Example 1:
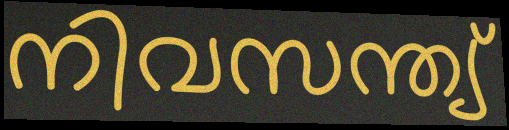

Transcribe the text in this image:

നിവസന്ത്യ്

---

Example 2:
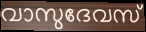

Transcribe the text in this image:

വാസുദേവസ്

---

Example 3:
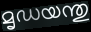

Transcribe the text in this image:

മൃഡയന്തു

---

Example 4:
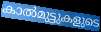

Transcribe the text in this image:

കാൽമുട്ടുകളുടെ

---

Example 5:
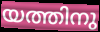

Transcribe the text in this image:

യത്തിനു